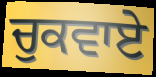
ਚੁਕਵਾਏ